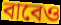
বাবেও